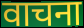
वाचना